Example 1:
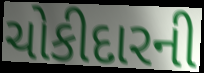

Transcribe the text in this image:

ચોકીદારની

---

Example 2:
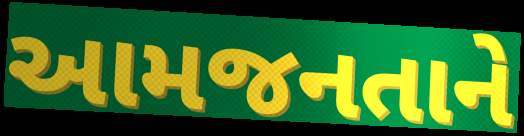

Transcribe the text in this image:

આમજનતાને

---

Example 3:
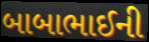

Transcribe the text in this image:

બાબાભાઈની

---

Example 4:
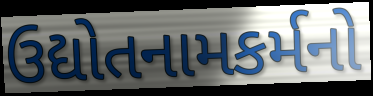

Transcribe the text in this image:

ઉદ્યોતનામકર્મનો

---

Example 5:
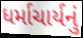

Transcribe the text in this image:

ધર્માચાર્યનું